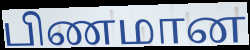
பிணமான